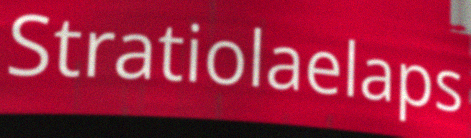
Stratiolaelaps